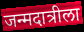
जन्मदात्रीला